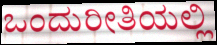
ಒಂದುರೀತಿಯಲ್ಲಿ